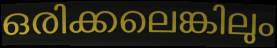
ഒരിക്കലെങ്കിലും